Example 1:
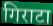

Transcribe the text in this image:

गिराटा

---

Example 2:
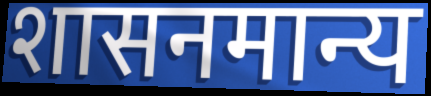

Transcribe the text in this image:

शासनमान्य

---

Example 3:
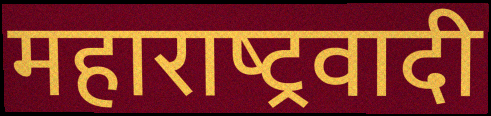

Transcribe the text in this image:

महाराष्ट्रवादी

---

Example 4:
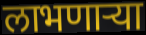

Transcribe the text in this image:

लाभणाऱ्या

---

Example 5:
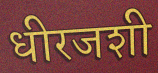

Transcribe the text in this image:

धीरजशी